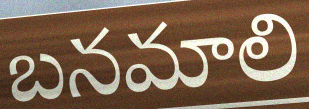
బనమాలి